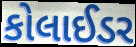
કોલાઈડર